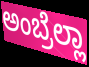
ಅಂಬ್ರೆಲ್ಲಾ